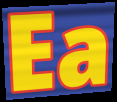
Ea